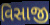
વિસાજી